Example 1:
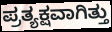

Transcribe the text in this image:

ಪ್ರತ್ಯಕ್ಷವಾಗಿತ್ತು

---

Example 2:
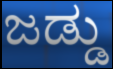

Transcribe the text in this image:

ಜಡ್ಡು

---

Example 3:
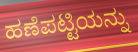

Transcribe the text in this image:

ಹಣೆಪಟ್ಟಿಯನ್ನು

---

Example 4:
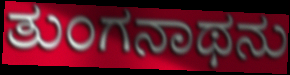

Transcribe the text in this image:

ತುಂಗನಾಥನು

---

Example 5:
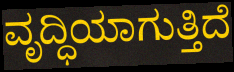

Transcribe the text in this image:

ವೃದ್ಧಿಯಾಗುತ್ತಿದೆ